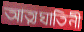
আত্মঘাতিনী